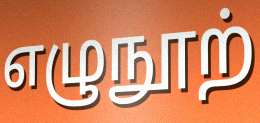
எழுநூற்